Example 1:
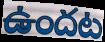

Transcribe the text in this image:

ఉందట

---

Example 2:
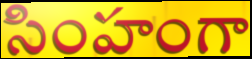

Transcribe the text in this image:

సింహంగా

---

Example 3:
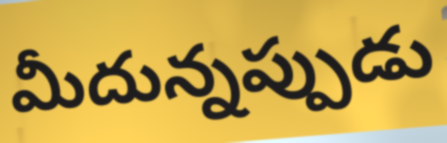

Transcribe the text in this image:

మీదున్నప్పుడు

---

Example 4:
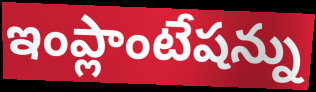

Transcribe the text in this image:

ఇంప్లాంటేషన్ను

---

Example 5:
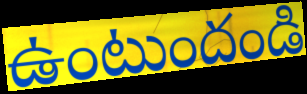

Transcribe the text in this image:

ఉంటుందండి